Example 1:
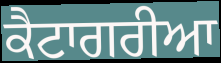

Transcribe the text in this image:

ਕੈਟਾਗਰੀਆ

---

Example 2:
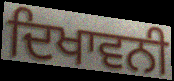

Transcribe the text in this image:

ਦਿਖਾਵਨੀ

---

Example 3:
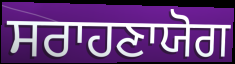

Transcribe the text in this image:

ਸਰਾਹਣਾਯੋਗ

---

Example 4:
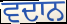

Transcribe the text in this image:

ਵਦਾਨ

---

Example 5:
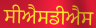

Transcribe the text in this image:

ਸੀਐਸਡੀਐਸ